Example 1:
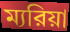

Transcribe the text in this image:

ম্যরিয়া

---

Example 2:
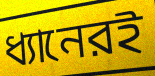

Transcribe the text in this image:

ধ্যানেরই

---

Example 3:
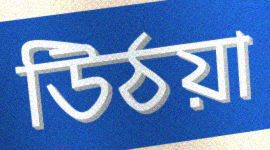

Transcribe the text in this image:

উিঠয়া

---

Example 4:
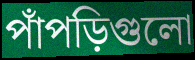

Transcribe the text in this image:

পাঁপড়িগুলো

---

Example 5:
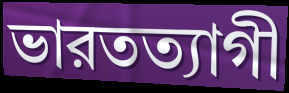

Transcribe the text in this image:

ভারতত্যাগী